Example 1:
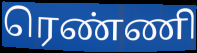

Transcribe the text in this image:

ரெண்ணி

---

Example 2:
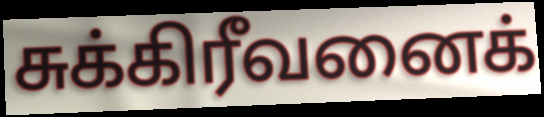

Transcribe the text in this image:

சுக்கிரீவனைக்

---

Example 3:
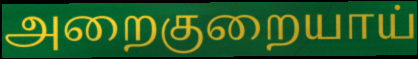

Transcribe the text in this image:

அறைகுறையாய்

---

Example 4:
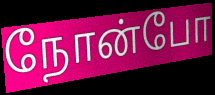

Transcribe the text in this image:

நோன்போ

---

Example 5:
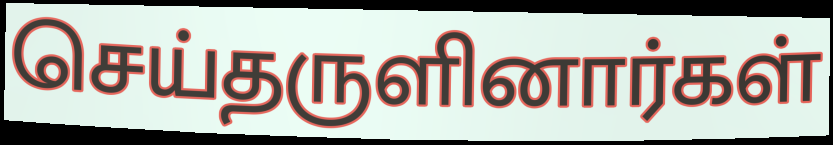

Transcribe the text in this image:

செய்தருளினார்கள்